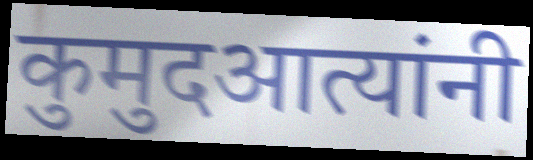
कुमुदआत्यांनी